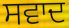
ਸਵਾਦ